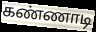
கண்ணாடி